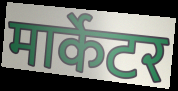
मार्केटर